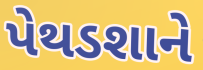
પેથડશાને